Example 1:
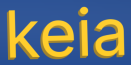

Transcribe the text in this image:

keia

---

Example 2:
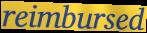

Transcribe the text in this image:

reimbursed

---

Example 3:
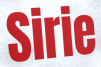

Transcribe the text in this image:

Sirie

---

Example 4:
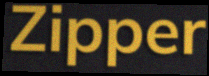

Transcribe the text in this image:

Zipper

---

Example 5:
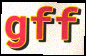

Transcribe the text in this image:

gff